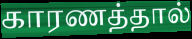
காரணத்தால்